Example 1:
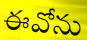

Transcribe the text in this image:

ఈవోను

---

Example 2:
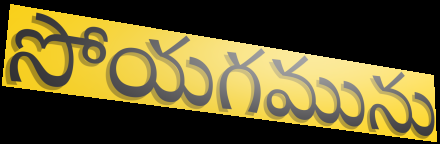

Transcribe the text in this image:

సోయగమును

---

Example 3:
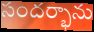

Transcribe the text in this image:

సందర్భాను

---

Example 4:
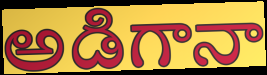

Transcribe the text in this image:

అడిగానా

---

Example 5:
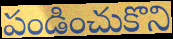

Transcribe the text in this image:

పండించుకొని